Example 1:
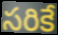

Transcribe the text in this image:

సరికే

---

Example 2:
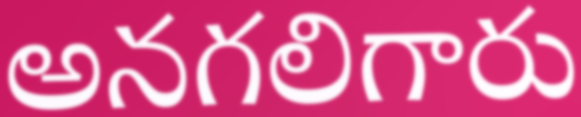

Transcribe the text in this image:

అనగలిగారు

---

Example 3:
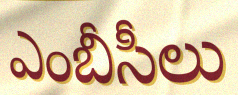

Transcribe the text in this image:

ఎంబీసీలు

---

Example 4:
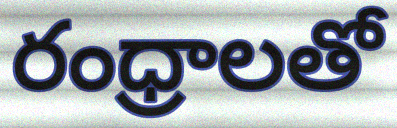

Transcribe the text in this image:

రంధ్రాలతో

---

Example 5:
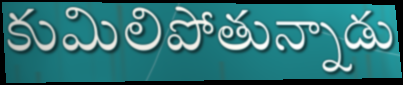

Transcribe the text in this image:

కుమిలిపోతున్నాడు